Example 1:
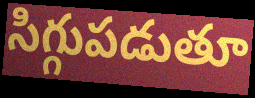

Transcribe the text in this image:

సిగ్గుపడుతూ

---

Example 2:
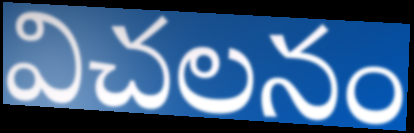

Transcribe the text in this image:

విచలనం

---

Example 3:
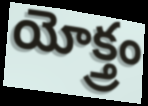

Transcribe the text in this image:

యోక్త్రం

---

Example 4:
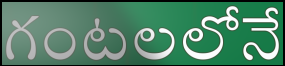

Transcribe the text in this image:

గంటలలోనే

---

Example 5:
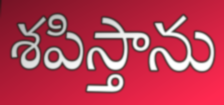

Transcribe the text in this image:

శపిస్తాను